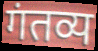
गंतव्य